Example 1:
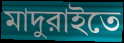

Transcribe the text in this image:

মাদুরাইতে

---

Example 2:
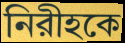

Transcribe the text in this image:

নিরীহকে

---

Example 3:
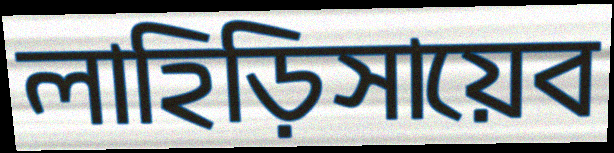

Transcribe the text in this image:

লাহিড়িসায়েব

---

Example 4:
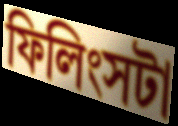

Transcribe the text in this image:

ফিলিংসটা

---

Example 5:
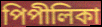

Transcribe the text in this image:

পিপীলিকা